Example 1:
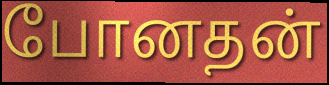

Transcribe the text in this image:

போனதன்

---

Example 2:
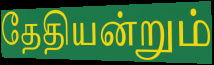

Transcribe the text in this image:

தேதியன்றும்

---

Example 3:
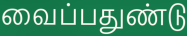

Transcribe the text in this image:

வைப்பதுண்டு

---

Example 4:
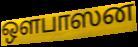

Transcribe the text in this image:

ஒளபாஸன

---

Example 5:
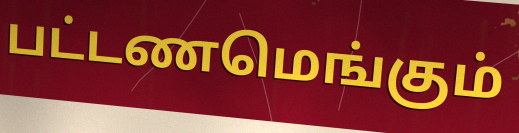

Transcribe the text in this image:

பட்டணமெங்கும்